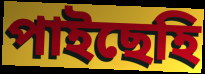
পাইছেহি